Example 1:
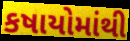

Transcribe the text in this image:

કષાયોમાંથી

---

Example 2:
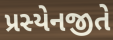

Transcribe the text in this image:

પ્રસ્યેનજીતે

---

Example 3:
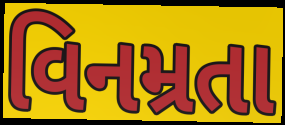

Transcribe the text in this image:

વિનમ્રતા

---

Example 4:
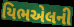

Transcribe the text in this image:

યિભએલની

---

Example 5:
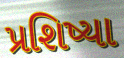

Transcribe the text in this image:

પ્રશિષ્યા